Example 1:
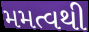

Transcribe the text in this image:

મમત્વથી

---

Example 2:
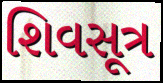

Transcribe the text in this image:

શિવસૂત્ર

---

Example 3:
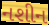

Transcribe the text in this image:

નશીન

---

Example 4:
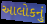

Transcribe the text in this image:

આલોકનું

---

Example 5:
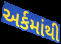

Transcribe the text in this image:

અર્કમાંથી